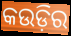
କଉଡ଼ିର